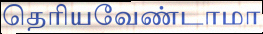
தெரியவேண்டாமா